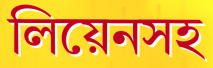
লিয়েনসহ